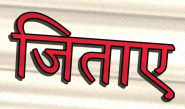
जिताए